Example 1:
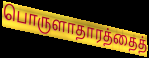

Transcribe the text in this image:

பொருளாதாரத்தைத்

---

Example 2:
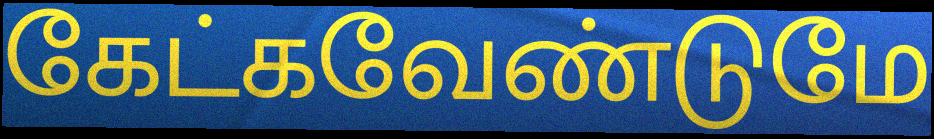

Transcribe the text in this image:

கேட்கவேண்டுமே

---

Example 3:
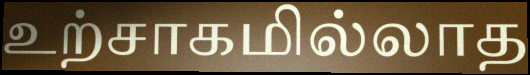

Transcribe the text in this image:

உற்சாகமில்லாத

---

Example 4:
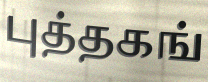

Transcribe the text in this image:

புத்தகங்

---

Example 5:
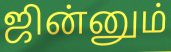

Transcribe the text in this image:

ஜின்னும்